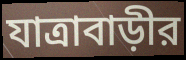
যাত্রাবাড়ীর